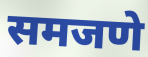
समजणे